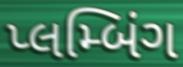
પ્લમ્બિંગ